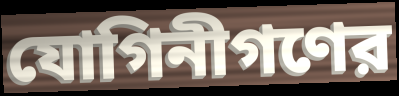
যোগিনীগণের